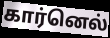
கார்னெல்